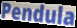
Pendula